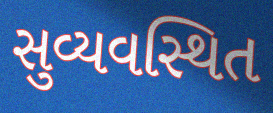
સુવ્યવસ્થિત